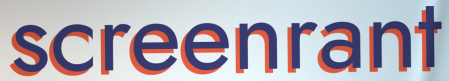
screenrant